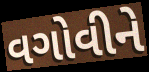
વગોવીને